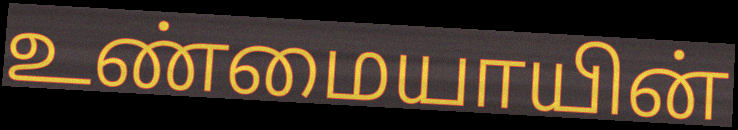
உண்மையாயின்